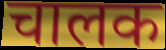
चालक